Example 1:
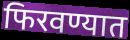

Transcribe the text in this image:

फिरवण्यात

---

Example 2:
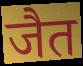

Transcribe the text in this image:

जैत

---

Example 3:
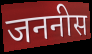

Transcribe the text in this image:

जननीस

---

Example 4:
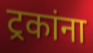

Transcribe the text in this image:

ट्रकांना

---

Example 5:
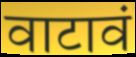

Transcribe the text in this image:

वाटावं